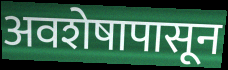
अवशेषापासून